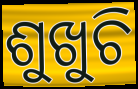
ଶୁଖୁଚି